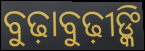
ବୁଢ଼ାବୁଢ଼ୀଙ୍କି